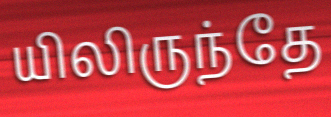
யிலிருந்தே